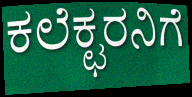
ಕಲೆಕ್ಟರನಿಗೆ